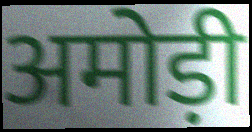
अमोड़ी